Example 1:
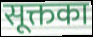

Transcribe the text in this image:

सूक्तका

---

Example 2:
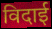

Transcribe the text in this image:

विदाई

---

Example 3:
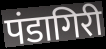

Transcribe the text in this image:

पंडागिरी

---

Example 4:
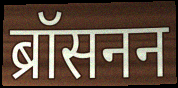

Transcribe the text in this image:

ब्रॉसनन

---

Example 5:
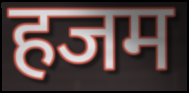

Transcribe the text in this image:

हजम